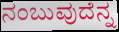
ನಂಬುವುದೆನ್ನ